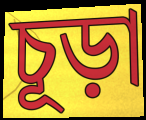
চূড়া